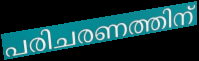
പരിചരണത്തിന്